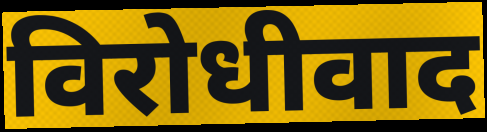
विरोधीवाद